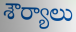
శౌర్యాలు